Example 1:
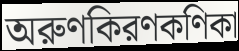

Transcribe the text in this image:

অরুণকিরণকণিকা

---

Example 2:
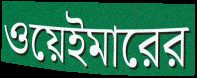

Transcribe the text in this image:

ওয়েইমারের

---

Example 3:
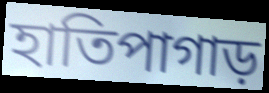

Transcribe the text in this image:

হাতিপাগাড়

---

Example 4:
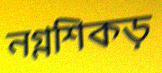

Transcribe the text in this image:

নগ্নশিকড়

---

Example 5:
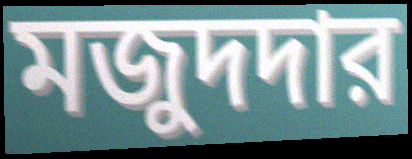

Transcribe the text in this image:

মজুদদার